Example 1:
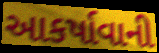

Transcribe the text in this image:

આકર્ષાવાની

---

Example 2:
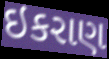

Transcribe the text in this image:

ઇકરાણ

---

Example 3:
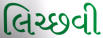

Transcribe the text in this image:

લિચ્છવી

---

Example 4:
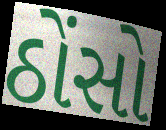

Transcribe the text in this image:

ઠોંસો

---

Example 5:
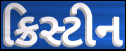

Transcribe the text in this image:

ક્રિસ્ટીન